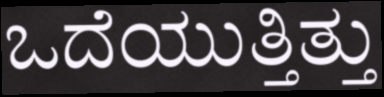
ಒದೆಯುತ್ತಿತ್ತು